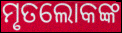
ମୃତଲୋକଙ୍କ